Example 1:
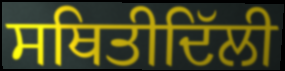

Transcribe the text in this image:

ਸਥਿਤੀਦਿੱਲੀ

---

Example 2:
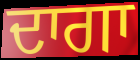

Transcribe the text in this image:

ਦਾਗਾ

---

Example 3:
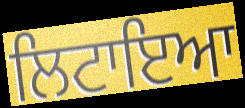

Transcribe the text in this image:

ਲਿਟਾਇਆ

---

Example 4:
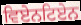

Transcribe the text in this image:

ਵਿਏਨਟਿਏਨ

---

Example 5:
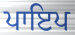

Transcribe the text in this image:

ਪਾਇਪ